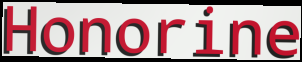
Honorine